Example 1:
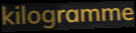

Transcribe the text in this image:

kilogramme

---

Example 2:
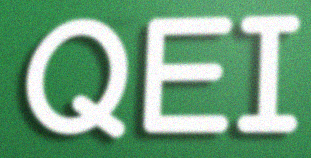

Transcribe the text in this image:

QEI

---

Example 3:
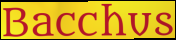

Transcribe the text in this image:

Bacchus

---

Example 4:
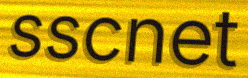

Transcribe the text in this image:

sscnet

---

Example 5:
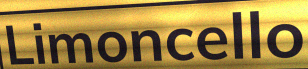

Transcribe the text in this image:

Limoncello